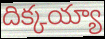
దిక్కయ్యా